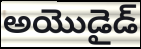
అయొడైడ్